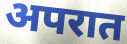
अपरात